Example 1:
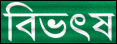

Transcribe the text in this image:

বিভৎষ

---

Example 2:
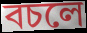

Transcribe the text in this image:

বচলে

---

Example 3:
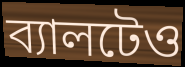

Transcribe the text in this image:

ব্যালটেও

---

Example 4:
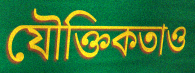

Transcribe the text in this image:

যৌক্তিকতাও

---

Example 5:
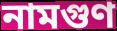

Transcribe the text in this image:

নামগুণ